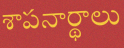
శాపనార్థాలు